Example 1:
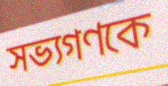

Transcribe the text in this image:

সভ্যগণকে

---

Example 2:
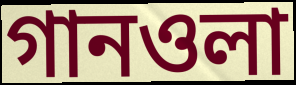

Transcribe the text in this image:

গানওলা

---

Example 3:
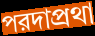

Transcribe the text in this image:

পরদাপ্রথা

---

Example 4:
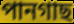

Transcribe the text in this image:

পানগাছ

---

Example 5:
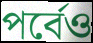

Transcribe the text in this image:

পর্বেও